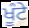
ਖੂੰਟੇ